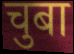
चुबा